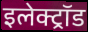
इलेक्ट्रॉड